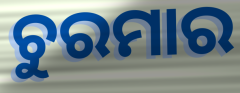
ଚୁରମାର